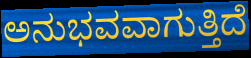
ಅನುಭವವಾಗುತ್ತಿದೆ